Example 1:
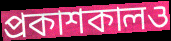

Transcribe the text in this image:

প্রকাশকালও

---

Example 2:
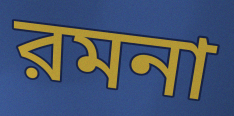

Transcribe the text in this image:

রমনা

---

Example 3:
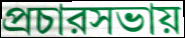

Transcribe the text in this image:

প্রচারসভায়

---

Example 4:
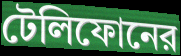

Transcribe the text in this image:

টেলিফোনের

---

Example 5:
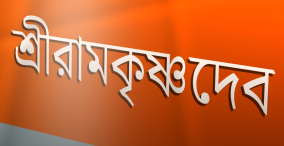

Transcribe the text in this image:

শ্রীরামকৃষ্ণদেব